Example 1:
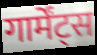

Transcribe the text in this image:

गार्मेंट्स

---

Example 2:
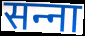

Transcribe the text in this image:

सन्ना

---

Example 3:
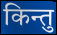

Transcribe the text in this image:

किन्‍तु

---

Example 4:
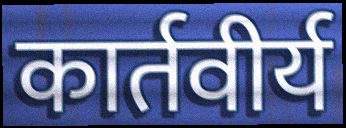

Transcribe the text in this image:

कार्तवीर्य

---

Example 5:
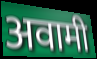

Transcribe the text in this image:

अवामी